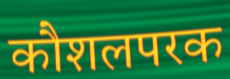
कौशलपरक